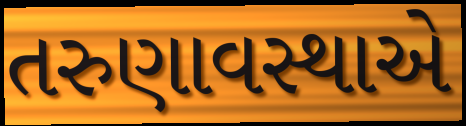
તરુણાવસ્થાએ